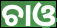
ଚାଓ